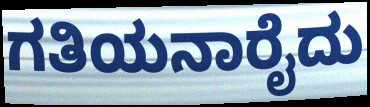
ಗತಿಯನಾರೈದು